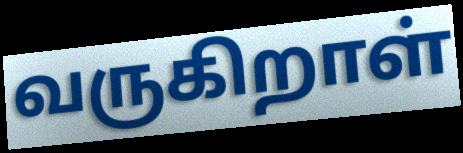
வருகிறாள்